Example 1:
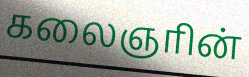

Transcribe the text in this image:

கலைஞரின்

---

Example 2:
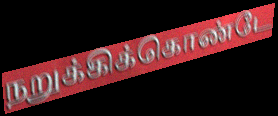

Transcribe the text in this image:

நறுக்கிக்கொண்டே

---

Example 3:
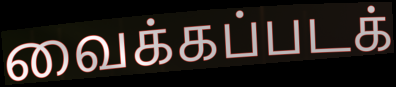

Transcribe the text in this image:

வைக்கப்படக்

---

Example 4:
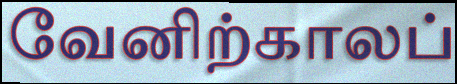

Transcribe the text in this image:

வேனிற்காலப்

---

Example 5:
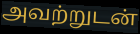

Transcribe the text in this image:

அவற்றுடன்